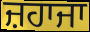
ਜ਼ਹਾਜਾ